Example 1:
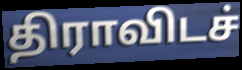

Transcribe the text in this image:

திராவிடச்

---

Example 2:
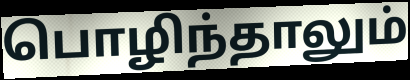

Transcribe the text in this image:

பொழிந்தாலும்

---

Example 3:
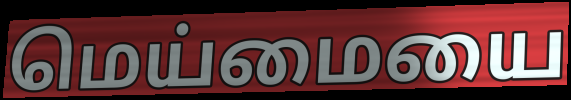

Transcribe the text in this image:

மெய்மையை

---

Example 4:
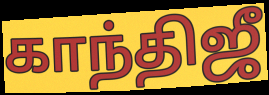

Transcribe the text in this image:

காந்திஜீ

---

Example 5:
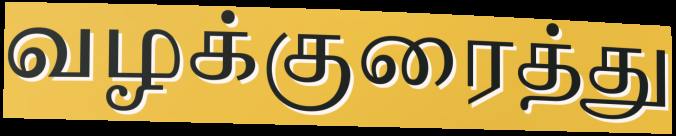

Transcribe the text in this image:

வழக்குரைத்து